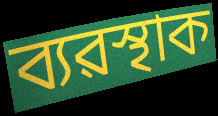
ব্যৱস্থাক